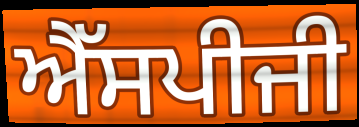
ਐੱਸਪੀਜੀ